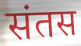
संतस